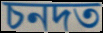
চনদত